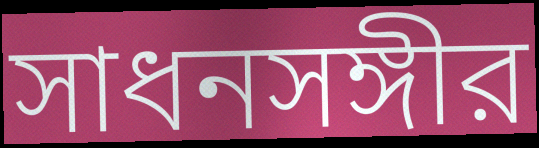
সাধনসঙ্গীর